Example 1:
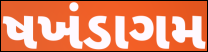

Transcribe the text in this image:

ષખંડાગમ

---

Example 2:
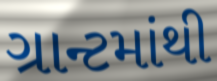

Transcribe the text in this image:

ગ્રાન્ટમાંથી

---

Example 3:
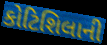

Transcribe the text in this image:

કોટિશિલાની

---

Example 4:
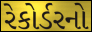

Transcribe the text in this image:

રેકોર્ડરનો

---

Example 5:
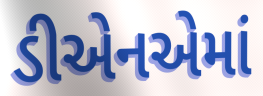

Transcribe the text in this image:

ડીએનએમાં